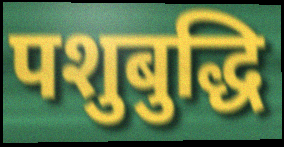
पशुबुद्धि